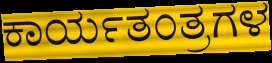
ಕಾರ್ಯತಂತ್ರಗಳ